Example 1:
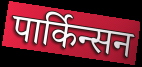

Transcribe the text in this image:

पार्किन्सन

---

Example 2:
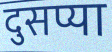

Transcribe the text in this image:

दुसप्या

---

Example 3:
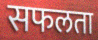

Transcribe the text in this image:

सफलता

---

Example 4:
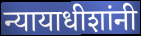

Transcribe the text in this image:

न्यायाधीशांनी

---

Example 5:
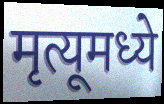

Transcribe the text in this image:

मृत्यूमध्ये